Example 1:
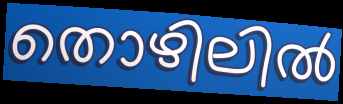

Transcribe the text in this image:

തൊഴിലിൽ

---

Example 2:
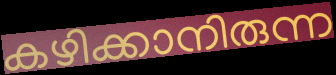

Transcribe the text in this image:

കഴിക്കാനിരുന്ന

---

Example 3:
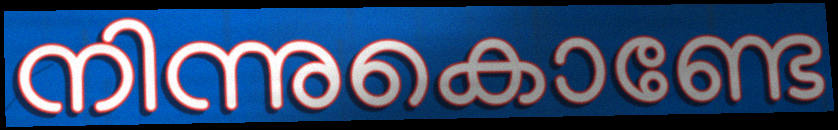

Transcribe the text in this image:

നിന്നുകൊണ്ടേ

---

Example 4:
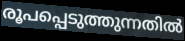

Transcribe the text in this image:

രൂപപ്പെടുത്തുന്നതിൽ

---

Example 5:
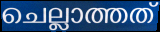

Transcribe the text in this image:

ചെല്ലാത്തത്